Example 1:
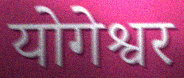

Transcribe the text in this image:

योगेश्वर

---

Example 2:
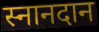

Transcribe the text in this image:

स्नानदान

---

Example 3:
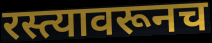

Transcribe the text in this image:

रस्त्यावरूनच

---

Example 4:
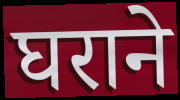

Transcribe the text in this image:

घराने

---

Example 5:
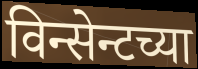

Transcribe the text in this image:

विन्सेन्टच्या